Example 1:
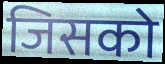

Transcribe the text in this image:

जिसको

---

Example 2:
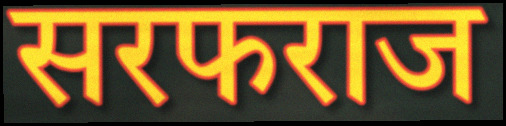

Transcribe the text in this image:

सरफराज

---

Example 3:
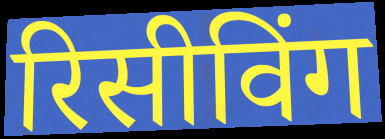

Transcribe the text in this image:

रिसीविंग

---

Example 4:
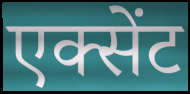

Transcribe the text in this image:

एक्सेंट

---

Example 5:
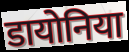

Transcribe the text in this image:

डायोनिया